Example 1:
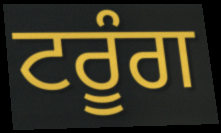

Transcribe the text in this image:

ਟਰੂੰਗ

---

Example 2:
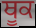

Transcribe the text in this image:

ਥੂਕ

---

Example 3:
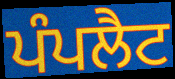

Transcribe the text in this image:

ਪੰਪਲੈਟ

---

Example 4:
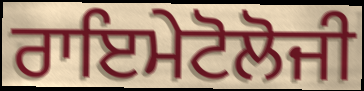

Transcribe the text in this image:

ਰਾਇਮੇਟੋਲੋਜੀ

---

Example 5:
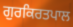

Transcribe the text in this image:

ਗੁਰਕਿਰਤਪਾਲ